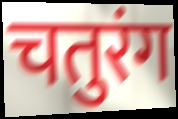
चतुरंग